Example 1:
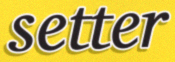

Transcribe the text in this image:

setter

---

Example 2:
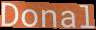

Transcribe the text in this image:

Donal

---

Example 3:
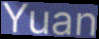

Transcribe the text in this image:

Yuan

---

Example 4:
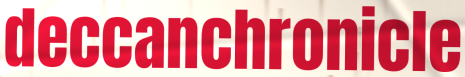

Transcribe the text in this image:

deccanchronicle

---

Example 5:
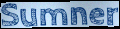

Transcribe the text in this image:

Sumner